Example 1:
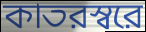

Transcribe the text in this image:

কাতরস্বরে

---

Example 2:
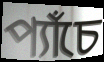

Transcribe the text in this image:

প্যাঁচে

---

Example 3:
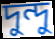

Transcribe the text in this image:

দুন্দু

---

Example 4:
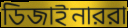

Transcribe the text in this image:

ডিজাইনাররা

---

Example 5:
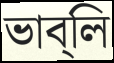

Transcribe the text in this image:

ভাব্‌লি